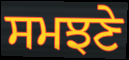
ਸਮਝਣੇ